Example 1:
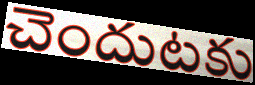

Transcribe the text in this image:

చెందుటకు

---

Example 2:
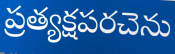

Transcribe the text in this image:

ప్రత్యక్షపరచెను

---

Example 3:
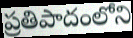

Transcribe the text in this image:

ప్రతిపాదంలోని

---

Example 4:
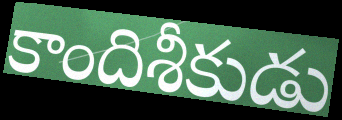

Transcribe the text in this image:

కాందిశీకుడు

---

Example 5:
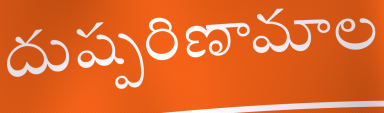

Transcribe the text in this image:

దుష్పరిణామాల